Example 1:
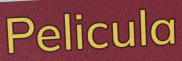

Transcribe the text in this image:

Pelicula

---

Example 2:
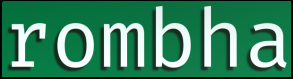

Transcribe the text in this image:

rombha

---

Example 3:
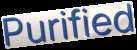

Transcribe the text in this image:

Purified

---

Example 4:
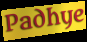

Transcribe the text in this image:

Padhye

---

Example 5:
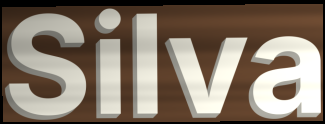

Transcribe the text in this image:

Silva